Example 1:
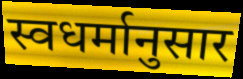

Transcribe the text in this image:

स्वधर्मानुसार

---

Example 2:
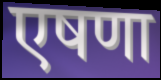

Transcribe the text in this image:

एषणा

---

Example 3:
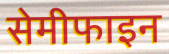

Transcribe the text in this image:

सेमीफाइन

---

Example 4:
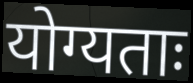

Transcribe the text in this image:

योग्यताः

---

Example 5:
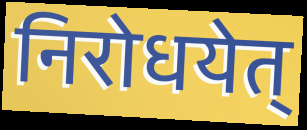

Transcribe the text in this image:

निरोधयेत्